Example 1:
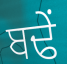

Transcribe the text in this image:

ਬਢੇਂ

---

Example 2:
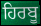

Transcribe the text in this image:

ਹਿਰਬੂ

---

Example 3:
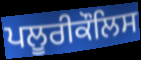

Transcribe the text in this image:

ਪਲੂਰੀਕੌਲਿਸ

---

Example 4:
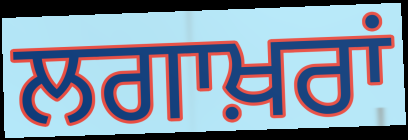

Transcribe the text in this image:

ਲਗਾਖ਼ਰਾਂ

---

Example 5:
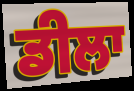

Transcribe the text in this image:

ਡੀਲਾ